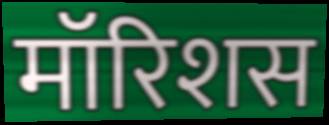
मॉरिशस